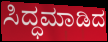
ಸಿದ್ಧಮಾಡಿದ